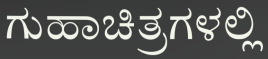
ಗುಹಾಚಿತ್ರಗಳಲ್ಲಿ